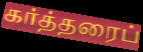
கர்த்தரைப்